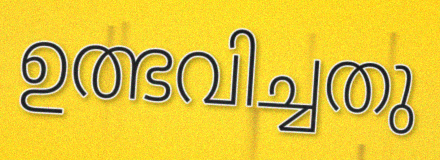
ഉത്ഭവിച്ചതു